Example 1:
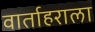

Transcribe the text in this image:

वार्ताहराला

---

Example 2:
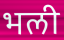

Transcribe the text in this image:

भली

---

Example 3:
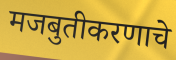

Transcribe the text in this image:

मजबुतीकरणाचे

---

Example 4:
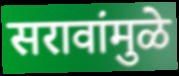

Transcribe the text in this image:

सरावांमुळे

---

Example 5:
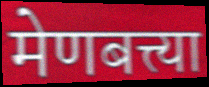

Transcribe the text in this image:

मेणबत्त्या